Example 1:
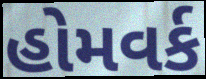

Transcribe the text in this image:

હોમવર્ક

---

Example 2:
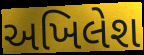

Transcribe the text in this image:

અખિલેશ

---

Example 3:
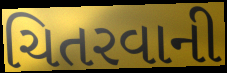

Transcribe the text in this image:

ચિતરવાની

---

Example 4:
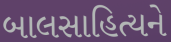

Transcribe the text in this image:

બાલસાહિત્યને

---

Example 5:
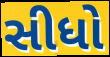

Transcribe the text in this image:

સીધો